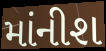
માંનીશ